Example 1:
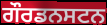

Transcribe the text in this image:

ਗੌਰਡਨਸਟਨ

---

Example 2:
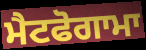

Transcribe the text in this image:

ਮੈਟਫੋਗਾਮਾ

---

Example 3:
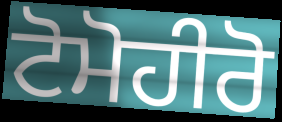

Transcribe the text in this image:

ਟੋਮੋਹੀਰੋ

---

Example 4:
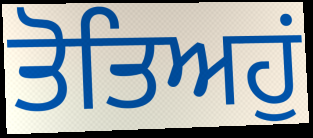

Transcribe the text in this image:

ਤੋਤਿਅਹੁਂ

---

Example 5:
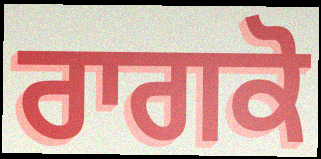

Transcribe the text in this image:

ਰਾਗਕੋ